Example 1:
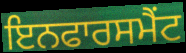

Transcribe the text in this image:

ਇਨਫਾਰਸਮੈਂਟ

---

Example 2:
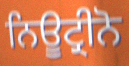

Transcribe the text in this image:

ਨਿਊਟ੍ਰੀਨੋ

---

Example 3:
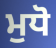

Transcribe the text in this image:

ਮੁਧੋ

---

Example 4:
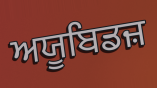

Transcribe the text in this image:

ਅਯੂਬਿਡਜ਼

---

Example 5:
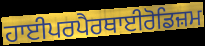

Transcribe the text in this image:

ਹਾਈਪਰਪੈਰਥਾਈਰੋਡਿਜ਼ਮ